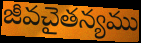
జీవచైతన్యము